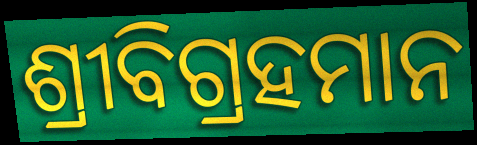
ଶ୍ରୀବିଗ୍ରହମାନ